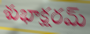
శుభాక్షరమ్